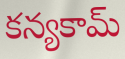
కన్యకామ్